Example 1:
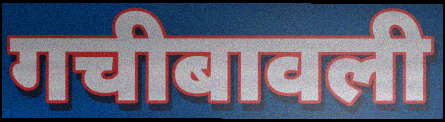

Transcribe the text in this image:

गचीबावली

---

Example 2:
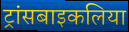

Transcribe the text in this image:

ट्रांसबाइकलिया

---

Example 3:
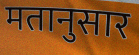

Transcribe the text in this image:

मतानुसार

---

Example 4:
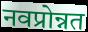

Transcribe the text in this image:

नवप्रोन्नत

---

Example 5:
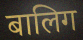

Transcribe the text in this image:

बालिग